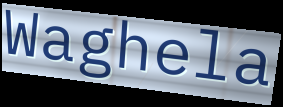
Waghela